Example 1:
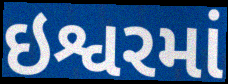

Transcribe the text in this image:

ઇશ્વરમાં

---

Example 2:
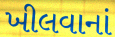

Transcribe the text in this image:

ખીલવાનાં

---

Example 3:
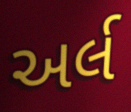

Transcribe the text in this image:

અર્લ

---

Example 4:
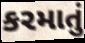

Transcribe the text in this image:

કરમાતું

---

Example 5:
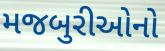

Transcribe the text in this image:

મજબુરીઓનો